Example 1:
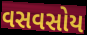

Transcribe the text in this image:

વસવસોય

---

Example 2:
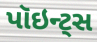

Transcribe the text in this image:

પૉઇન્ટ્સ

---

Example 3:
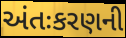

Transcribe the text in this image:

અંતઃકરણની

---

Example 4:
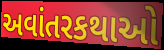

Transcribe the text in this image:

અવાંતરકથાઓ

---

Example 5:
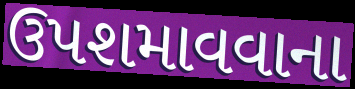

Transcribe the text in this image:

ઉપશમાવવાના